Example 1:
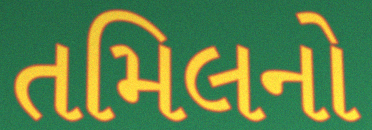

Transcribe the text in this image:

તમિલનો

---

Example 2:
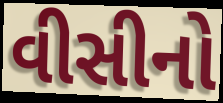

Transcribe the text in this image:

વીસીનો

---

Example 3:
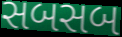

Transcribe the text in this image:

સબસબ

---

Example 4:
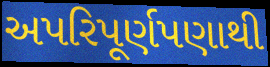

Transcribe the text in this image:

અપરિપૂર્ણપણાથી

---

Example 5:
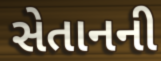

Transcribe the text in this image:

સેતાનની